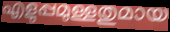
എളുപ്പമുള്ളതുമായ